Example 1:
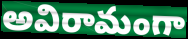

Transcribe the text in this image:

అవిరామంగా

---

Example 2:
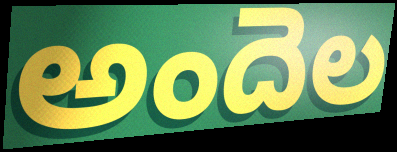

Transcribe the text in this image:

అందెల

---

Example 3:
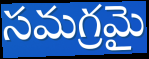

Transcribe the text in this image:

సమగ్రమై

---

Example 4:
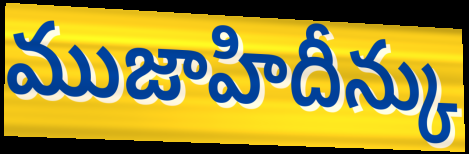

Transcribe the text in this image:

ముజాహిదీన్కు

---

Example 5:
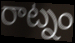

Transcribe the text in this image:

రాట్నం